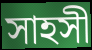
সাহসী